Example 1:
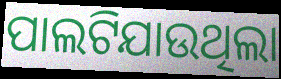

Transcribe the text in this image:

ପାଲଟିଯାଉଥିଲା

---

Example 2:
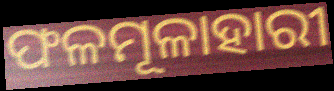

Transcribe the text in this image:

ଫଳମୂଳାହାରୀ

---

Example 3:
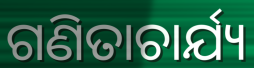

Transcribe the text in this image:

ଗଣିତାଚାର୍ଯ୍ୟ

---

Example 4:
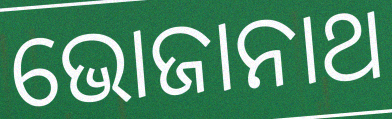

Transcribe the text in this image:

ଭୋଜାନାଥ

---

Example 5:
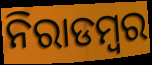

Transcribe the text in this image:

ନିରାଡମ୍ଵର